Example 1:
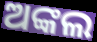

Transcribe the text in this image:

ଅଙ୍କଲ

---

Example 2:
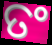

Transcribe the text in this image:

ତଂ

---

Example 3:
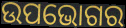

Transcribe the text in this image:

ଉପଭୋଗର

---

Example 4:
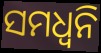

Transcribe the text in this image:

ସମଧ୍ୱନି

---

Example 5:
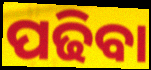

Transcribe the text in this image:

ପଢିବା